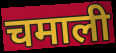
चमाली